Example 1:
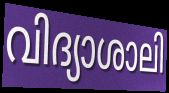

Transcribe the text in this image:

വിദ്യാശാലി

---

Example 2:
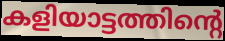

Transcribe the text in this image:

കളിയാട്ടത്തിന്റെ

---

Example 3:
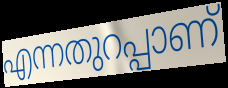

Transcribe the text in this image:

എന്നതുറപ്പാണ്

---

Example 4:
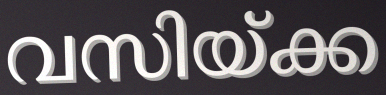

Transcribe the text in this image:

വസിയ്ക്ക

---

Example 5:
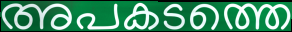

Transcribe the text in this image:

അപകടത്തെ